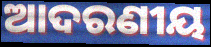
ଆଦରଣୀୟ